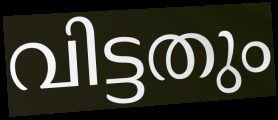
വിട്ടതും